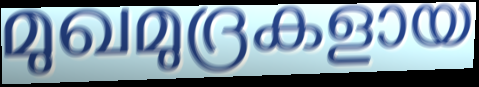
മുഖമുദ്രകളായ